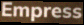
Empress